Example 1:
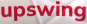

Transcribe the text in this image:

upswing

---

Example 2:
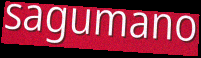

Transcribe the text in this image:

sagumano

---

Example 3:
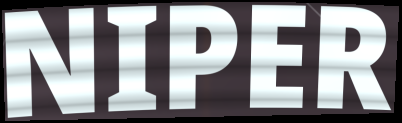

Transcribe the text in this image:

NIPER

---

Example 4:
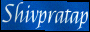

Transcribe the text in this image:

Shivpratap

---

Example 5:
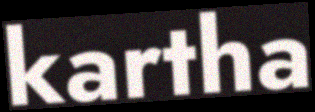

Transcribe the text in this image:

kartha